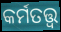
କର୍ମତତ୍ତ୍ୱ